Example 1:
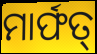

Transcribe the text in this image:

ମାର୍ଫତ୍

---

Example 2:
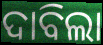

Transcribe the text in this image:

ଦାବିଲା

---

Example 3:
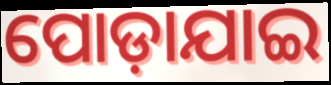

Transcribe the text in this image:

ପୋଡ଼ାଯାଇ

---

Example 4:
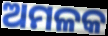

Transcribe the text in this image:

ଅମଳକ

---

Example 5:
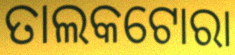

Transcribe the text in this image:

ତାଲକଟୋରା